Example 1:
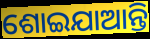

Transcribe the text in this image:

ଶୋଇଯାଆନ୍ତି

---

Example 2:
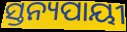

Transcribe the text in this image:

ସ୍ତନ୍ୟପାୟୀ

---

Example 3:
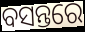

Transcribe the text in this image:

ବସନ୍ତରେ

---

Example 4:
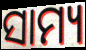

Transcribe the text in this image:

ସାମ୍ୟ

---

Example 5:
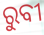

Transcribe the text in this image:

ରୁବୀ